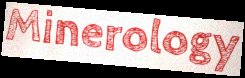
Minerology